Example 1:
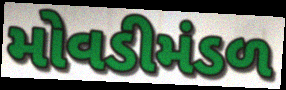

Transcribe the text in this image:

મોવડીમંડળ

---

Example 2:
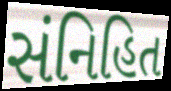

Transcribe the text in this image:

સંનિહિત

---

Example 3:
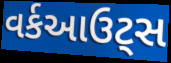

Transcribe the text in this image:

વર્કઆઉટ્સ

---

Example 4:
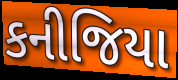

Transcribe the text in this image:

કનીજિયા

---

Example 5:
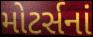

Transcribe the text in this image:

મોટર્સનાં